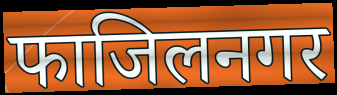
फाजिलनगर